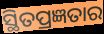
ସ୍ଥିତପ୍ରଜ୍ଞତାର